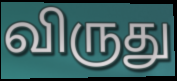
விருது